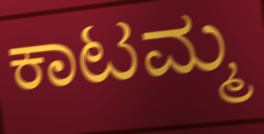
ಕಾಟಮ್ಮ